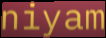
niyam